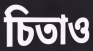
চিতাও